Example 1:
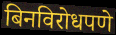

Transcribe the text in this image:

बिनविरोधपणे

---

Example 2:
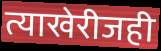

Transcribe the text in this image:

त्याखेरीजही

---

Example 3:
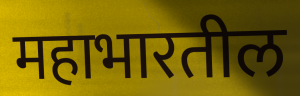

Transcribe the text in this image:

महाभारतील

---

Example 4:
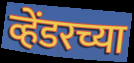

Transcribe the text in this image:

व्हेंडरच्या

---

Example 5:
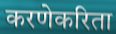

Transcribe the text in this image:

करणेकरिता